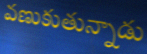
వణుకుతున్నాడు